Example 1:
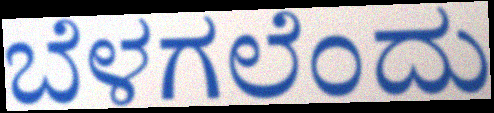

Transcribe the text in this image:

ಬೆಳಗಲೆಂದು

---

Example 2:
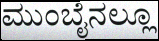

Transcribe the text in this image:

ಮುಂಬೈನಲ್ಲೂ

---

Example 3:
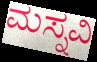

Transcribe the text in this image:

ಮಸ್ನವಿ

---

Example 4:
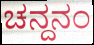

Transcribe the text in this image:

ಚನ್ದನಂ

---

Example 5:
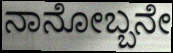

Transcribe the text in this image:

ನಾನೋಬ್ಬನೇ